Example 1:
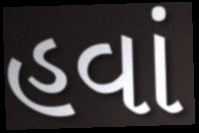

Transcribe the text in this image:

હવાં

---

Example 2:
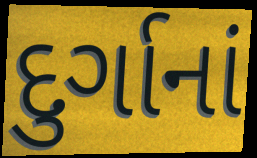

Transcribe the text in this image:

દુર્ગાનાં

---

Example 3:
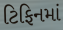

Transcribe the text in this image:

ટિફિનમાં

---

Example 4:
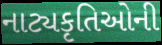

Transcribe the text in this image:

નાટ્યકૃતિઓની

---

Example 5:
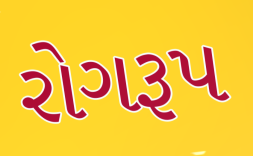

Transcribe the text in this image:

રોગરૂપ